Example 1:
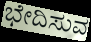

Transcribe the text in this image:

ಭೇದಿಸುವ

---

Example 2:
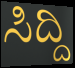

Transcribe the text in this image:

ಸಿದ್ದಿ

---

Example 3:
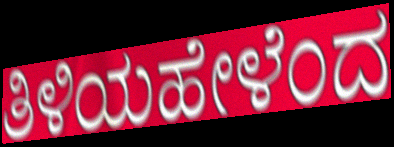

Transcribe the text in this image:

ತಿಳಿಯಹೇಳೆಂದ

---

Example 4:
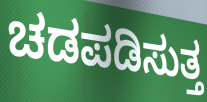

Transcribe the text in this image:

ಚಡಪಡಿಸುತ್ತ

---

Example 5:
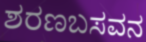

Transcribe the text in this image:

ಶರಣಬಸವನ